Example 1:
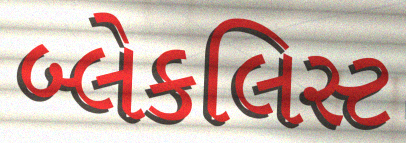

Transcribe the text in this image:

બ્લેકલિસ્ટ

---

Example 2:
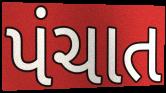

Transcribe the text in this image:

પંચાત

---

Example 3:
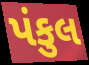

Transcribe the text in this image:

પંકુલ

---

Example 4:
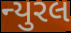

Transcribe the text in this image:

ન્યુરલ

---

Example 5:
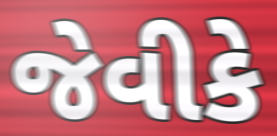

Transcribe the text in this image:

જેવીકે